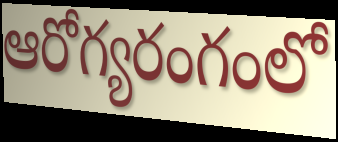
ఆరోగ్యరంగంలో